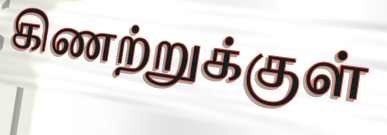
கிணற்றுக்குள்